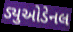
ડ્યુઓડેનલ